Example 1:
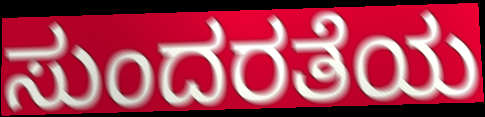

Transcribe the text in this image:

ಸುಂದರತೆಯ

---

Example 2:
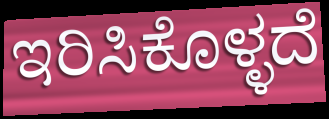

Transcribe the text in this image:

ಇರಿಸಿಕೊಳ್ಳದೆ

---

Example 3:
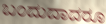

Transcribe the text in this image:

ಬಂದುದಾದರೂ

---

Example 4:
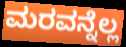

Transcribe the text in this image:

ಮರವನ್ನೆಲ್ಲ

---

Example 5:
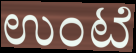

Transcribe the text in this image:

ಉಂಟೆ